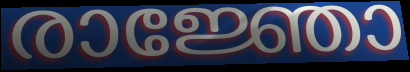
രാജ്ഞോ